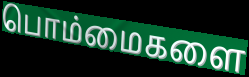
பொம்மைகளை